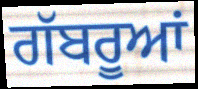
ਗੱਬਰੂਆਂ